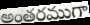
అంతరముగా